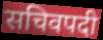
सचिवपदी